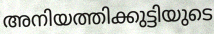
അനിയത്തിക്കുട്ടിയുടെ